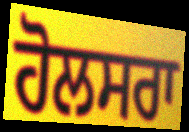
ਹੋਲਸਰਾ